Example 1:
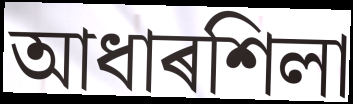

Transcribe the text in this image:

আধাৰশিলা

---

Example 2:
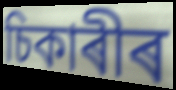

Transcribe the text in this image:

চিকাৰীৰ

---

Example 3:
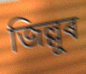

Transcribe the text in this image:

জিল্লুৰ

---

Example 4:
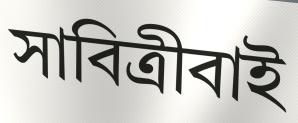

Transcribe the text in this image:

সাবিত্ৰীবাই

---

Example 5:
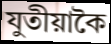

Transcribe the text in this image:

যুতীয়াকৈ